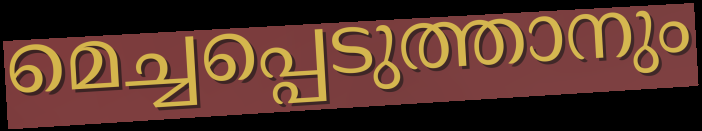
മെച്ചപ്പെടുത്താനും